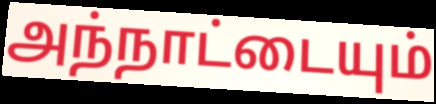
அந்நாட்டையும்